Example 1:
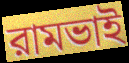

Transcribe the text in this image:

রামভাই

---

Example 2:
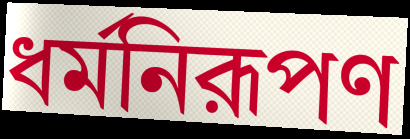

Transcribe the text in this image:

ধর্মনিরূপণ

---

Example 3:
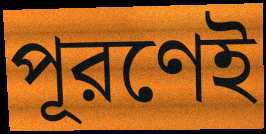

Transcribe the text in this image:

পূরণেই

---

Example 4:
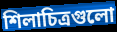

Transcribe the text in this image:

শিলাচিত্রগুলো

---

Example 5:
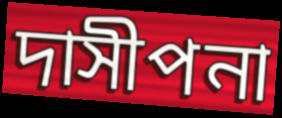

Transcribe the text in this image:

দাসীপনা